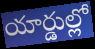
యార్డుల్లో